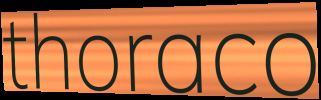
thoraco